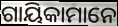
ଗାୟିକାମାନେ